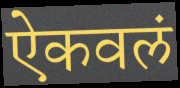
ऐकवलं